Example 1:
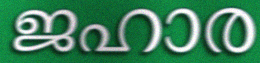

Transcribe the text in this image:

ജഹാര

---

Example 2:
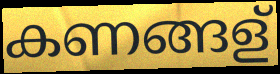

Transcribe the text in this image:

കണങ്ങള്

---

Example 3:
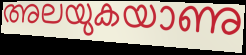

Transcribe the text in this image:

അലയുകയാണു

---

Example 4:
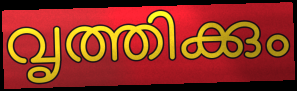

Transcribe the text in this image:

വൃത്തിക്കും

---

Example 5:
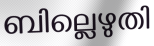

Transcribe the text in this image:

ബില്ലെഴുതി